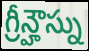
గ్రీన్హౌస్ను